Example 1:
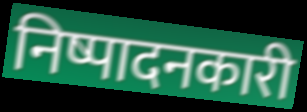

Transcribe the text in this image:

निष्पादनकारी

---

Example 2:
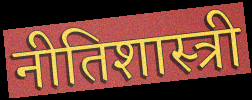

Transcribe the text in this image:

नीतिशास्त्री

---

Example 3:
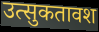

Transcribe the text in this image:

उत्सुकतावश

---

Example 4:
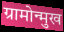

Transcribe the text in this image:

ग्रामोन्मुख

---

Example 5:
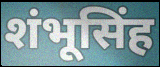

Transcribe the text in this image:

शंभूसिंह